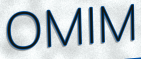
OMIM